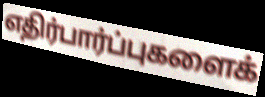
எதிர்பார்ப்புகளைக்